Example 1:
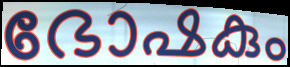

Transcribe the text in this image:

ഭോഷകും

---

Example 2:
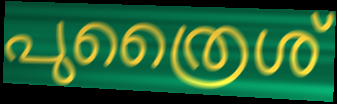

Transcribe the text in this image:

പുത്രൈശ്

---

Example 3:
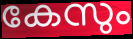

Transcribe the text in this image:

കേസും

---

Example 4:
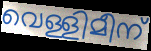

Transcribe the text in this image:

വെള്ളിമീന്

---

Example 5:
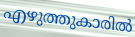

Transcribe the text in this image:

എഴുത്തുകാരിൽ